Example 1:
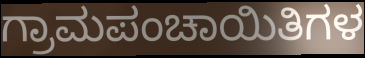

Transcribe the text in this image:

ಗ್ರಾಮಪಂಚಾಯಿತಿಗಳ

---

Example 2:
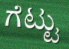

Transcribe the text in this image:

ಗೆಟ್ಟು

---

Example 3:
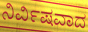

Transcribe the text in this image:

ನಿರ್ವಿಷವಾದ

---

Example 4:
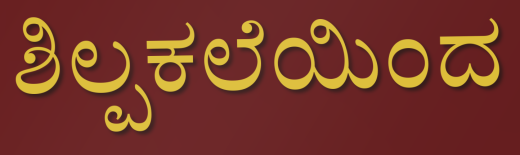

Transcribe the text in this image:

ಶಿಲ್ಪಕಲೆಯಿಂದ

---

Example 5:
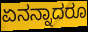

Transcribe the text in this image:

ಏನನ್ನಾದರೂ